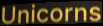
Unicorns